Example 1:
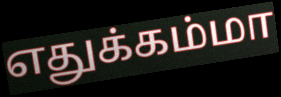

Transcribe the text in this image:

எதுக்கம்மா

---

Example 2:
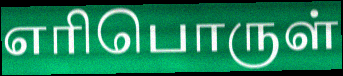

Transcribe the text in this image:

எரிபொருள்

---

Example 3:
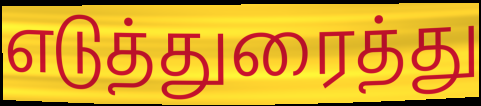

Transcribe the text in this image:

எடுத்துரைத்து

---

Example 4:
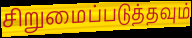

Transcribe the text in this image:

சிறுமைப்படுத்தவும்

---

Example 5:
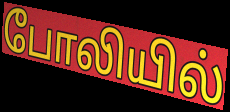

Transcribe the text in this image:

போலியில்